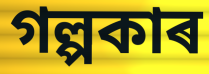
গল্পকাৰ